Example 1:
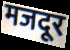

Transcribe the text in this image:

मजदूर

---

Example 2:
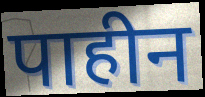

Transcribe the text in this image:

पाहीन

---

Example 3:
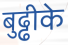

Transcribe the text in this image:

बुढ्ढीके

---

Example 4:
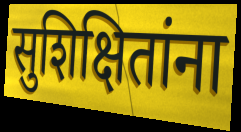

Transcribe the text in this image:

सुशिक्षितांना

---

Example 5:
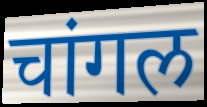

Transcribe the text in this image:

चांगल